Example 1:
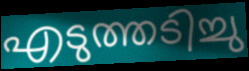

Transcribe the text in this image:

എടുത്തടിച്ചു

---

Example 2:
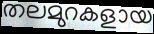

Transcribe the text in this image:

തലമുറകളായ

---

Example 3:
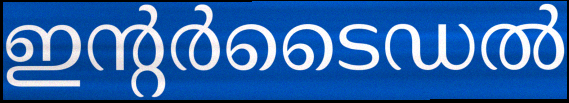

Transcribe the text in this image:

ഇന്റർടൈഡൽ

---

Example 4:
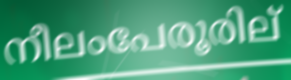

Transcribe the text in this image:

നീലംപേരൂരില്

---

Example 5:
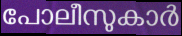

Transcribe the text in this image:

പോലീസുകാർ